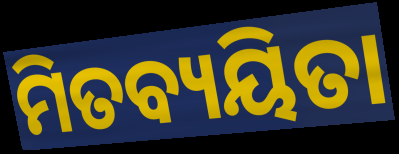
ମିତବ୍ୟୟିତା